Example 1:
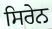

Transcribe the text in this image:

ਸਿਰੇਨ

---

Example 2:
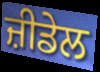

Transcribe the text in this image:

ਜ਼ੀਡੇਲ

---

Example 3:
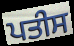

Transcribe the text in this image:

ਪਤੀਸ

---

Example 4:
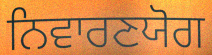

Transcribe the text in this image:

ਨਿਵਾਰਣਯੋਗ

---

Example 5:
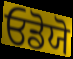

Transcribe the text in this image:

ਓਡੋਯੋ